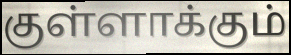
குள்ளாக்கும்